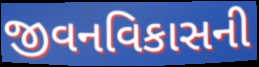
જીવનવિકાસની